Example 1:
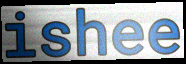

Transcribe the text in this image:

ishee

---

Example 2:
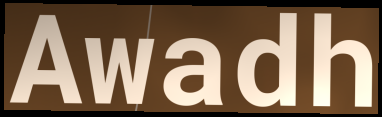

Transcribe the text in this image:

Awadh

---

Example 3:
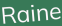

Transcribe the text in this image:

Raine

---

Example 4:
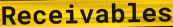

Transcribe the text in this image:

Receivables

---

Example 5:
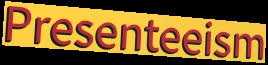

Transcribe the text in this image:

Presenteeism